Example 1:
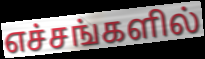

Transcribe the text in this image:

எச்சங்களில்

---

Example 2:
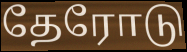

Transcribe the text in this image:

தேரோடு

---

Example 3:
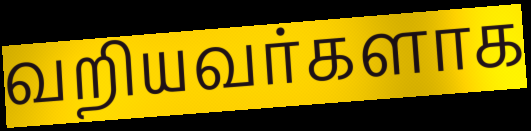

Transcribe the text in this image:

வறியவர்களாக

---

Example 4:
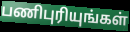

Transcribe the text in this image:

பணிபுரியுங்கள்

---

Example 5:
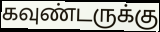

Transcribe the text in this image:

கவுண்டருக்கு